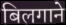
बिलगाने